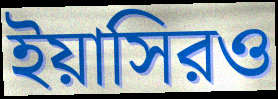
ইয়াসিরও